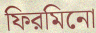
ফিরমিনো